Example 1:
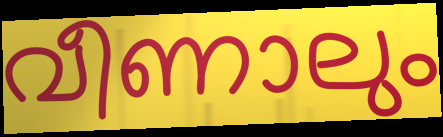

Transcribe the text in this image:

വീണാലും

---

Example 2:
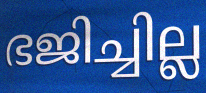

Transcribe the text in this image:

ഭജിച്ചില്ല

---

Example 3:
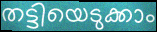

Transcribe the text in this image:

തട്ടിയെടുക്കാം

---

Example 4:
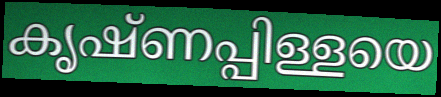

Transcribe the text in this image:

കൃഷ്ണപ്പിള്ളയെ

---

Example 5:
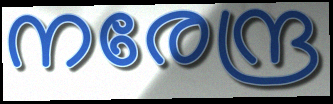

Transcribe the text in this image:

നരേന്ദ്ര